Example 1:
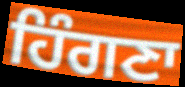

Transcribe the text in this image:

ਹਿੰਗਣਾ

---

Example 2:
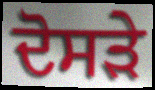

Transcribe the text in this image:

ਦੋਸੜੇ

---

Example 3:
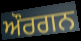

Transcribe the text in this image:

ਔਰਗਨ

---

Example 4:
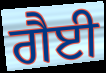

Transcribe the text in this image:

ਗੈਈ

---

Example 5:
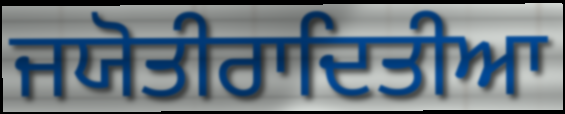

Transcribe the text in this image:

ਜਯੋਤੀਰਾਦਿਤੀਆ